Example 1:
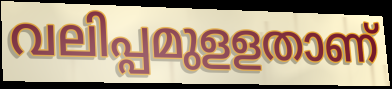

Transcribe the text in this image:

വലിപ്പമുളളതാണ്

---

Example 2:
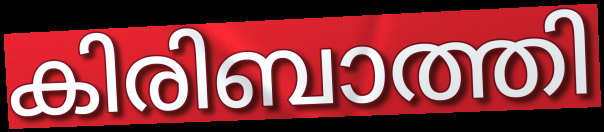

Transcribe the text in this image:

കിരിബാത്തി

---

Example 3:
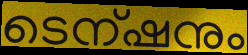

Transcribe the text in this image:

ടെന്ഷനും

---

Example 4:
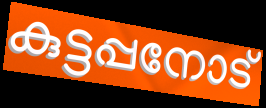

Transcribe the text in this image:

കുട്ടപ്പനോട്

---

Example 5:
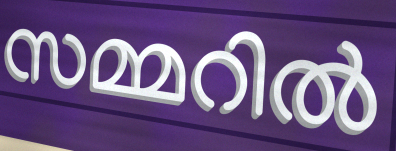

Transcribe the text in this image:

സമ്മറിൽ